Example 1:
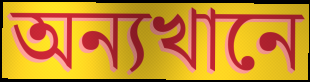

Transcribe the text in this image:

অন্যখানে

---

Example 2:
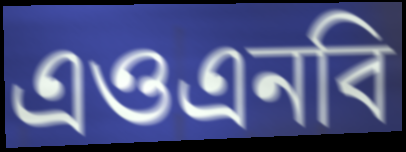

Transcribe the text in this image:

এওএনবি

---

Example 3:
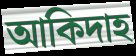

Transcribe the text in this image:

আকিদাহ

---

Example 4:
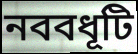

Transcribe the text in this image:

নববধূটি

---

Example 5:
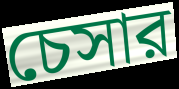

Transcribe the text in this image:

চেসার